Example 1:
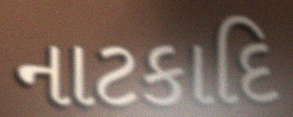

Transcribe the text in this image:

નાટકાદિ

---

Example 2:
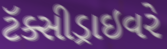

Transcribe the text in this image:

ટૅક્સીડ્રાઇવરે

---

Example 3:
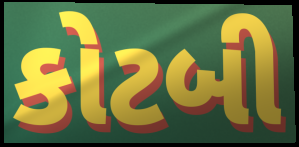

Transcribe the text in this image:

કોટબી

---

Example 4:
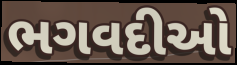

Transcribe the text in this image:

ભગવદીઓ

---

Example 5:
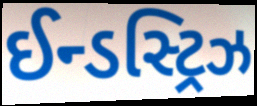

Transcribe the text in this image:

ઈન્ડસ્ટ્રિઝ